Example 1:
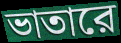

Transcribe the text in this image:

ভাতারে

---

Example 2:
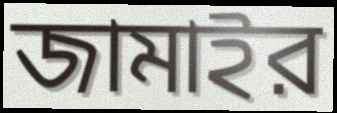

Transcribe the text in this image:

জামাইর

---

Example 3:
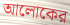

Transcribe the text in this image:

আলোকের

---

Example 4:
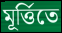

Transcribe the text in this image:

মূর্ত্তিতে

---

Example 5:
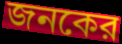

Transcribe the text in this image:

জনকের